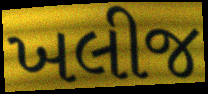
ખલીજ